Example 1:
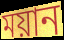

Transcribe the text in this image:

ময়ান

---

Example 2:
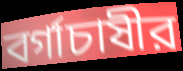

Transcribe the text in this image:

বর্গাচাষীর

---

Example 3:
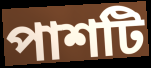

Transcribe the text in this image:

পাশটি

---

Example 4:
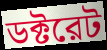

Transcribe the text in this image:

ডক্টরেট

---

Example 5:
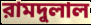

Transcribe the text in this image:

রামদুলাল